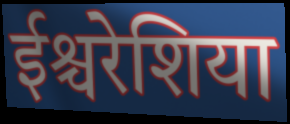
ईश्चरेशिया